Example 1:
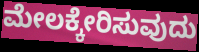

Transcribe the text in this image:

ಮೇಲಕ್ಕೇರಿಸುವುದು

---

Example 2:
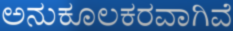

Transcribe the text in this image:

ಅನುಕೂಲಕರವಾಗಿವೆ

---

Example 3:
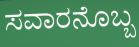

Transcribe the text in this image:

ಸವಾರನೊಬ್ಬ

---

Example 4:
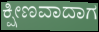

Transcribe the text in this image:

ಕ್ಷೀಣವಾದಾಗ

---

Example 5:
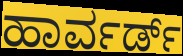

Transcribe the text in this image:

ಹಾರ್ವರ್ಡ್